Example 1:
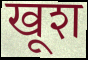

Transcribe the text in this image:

खूश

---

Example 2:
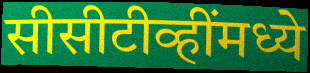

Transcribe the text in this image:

सीसीटीव्हींमध्ये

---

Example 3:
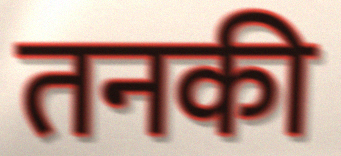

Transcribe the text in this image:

तनकी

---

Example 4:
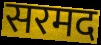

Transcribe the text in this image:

सरमद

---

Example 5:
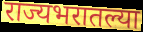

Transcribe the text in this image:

राज्यभरातल्या